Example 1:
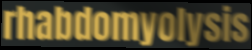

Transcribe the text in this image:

rhabdomyolysis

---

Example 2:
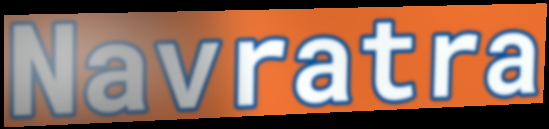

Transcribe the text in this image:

Navratra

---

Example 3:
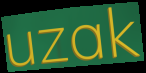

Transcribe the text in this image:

uzak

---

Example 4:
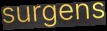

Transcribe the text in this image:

surgens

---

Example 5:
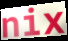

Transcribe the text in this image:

nix